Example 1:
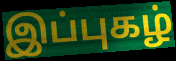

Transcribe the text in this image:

இப்புகழ்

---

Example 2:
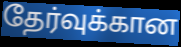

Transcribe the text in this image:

தேர்வுக்கான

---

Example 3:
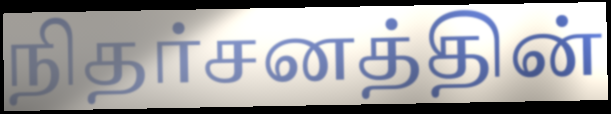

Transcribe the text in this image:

நிதர்சனத்தின்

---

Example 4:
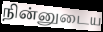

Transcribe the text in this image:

நின்னுடைய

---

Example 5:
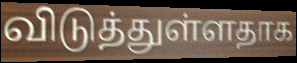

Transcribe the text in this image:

விடுத்துள்ளதாக